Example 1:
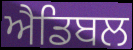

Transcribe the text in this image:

ਐਡਿਬਲ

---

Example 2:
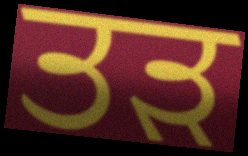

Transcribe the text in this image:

ਤੜ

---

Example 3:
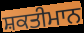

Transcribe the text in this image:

ਸ਼ਕਤੀਮਾਨ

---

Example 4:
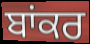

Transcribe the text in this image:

ਬਾਂਕਰ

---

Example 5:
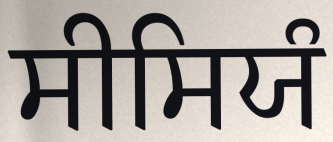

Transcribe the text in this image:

ਸੀਸਿਯੰ